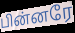
பின்னரே